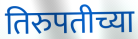
तिरुपतीच्या